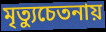
মৃত্যুচেতনায়